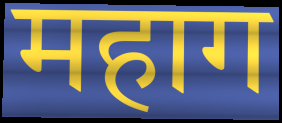
महाग